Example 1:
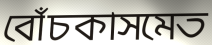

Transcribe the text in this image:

বোঁচকাসমেত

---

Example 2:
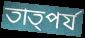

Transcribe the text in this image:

তাত্পর্য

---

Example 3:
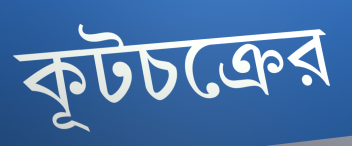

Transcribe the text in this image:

কূটচক্রের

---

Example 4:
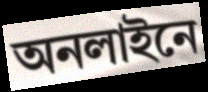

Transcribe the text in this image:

অনলাইনে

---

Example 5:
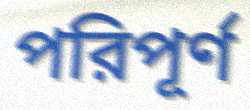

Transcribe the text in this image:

পরিপূর্ণ